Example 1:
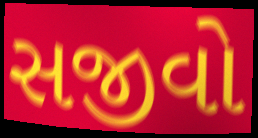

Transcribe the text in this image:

સજીવો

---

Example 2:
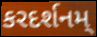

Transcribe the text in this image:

કરદર્શનમ્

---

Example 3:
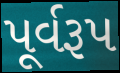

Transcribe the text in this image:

પૂર્વરૂપ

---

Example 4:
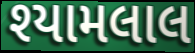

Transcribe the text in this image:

શ્યામલાલ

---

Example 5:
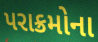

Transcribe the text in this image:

પરાક્રમોના